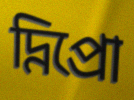
দ্নিপ্রো